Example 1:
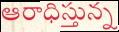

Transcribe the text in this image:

ఆరాధిస్తున్న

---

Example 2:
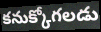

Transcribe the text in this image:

కనుక్కోగలడు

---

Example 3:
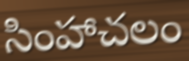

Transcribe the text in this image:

సింహాచలం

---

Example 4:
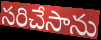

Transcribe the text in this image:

సరిచేసాను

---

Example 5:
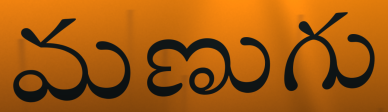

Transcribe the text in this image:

మణుగు